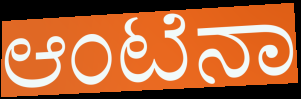
ಆಂಟೆನಾ